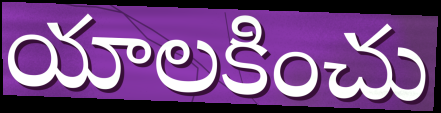
యాలకించు